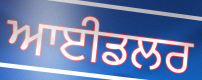
ਆਈਡਲਰ